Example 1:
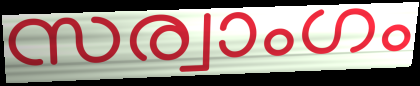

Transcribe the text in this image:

സര്വാംഗം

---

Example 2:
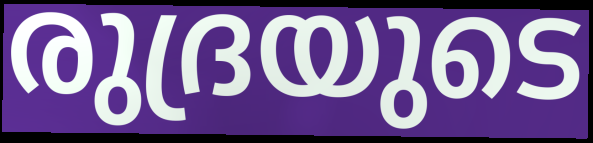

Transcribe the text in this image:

രുദ്രയുടെ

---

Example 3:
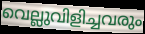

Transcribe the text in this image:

വെല്ലുവിളിച്ചവരും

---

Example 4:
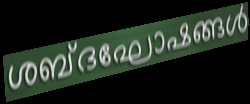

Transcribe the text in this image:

ശബ്ദഘോഷങ്ങൾ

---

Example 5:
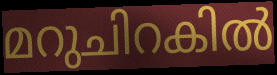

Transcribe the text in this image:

മറുചിറകിൽ